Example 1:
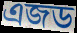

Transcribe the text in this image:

এজড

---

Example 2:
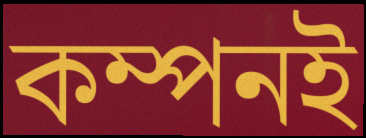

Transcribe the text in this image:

কম্পনই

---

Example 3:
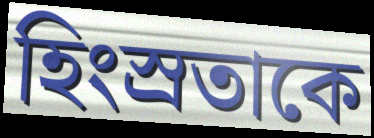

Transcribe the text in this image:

হিংস্রতাকে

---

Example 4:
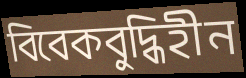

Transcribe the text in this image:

বিবেকবুদ্ধিহীন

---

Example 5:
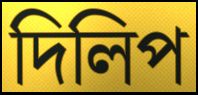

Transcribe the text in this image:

দিলিপ